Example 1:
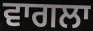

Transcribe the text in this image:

ਵਾਗਲਾ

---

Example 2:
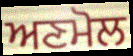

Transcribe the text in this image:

ਅਣਮੋਲ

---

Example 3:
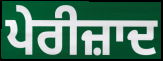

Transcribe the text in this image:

ਪੇਰੀਜ਼ਾਦ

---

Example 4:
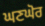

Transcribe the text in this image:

ਘਣਘੋਰ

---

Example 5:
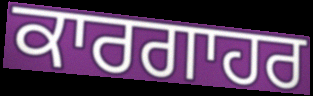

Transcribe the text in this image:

ਕਾਰਗਾਹਰ